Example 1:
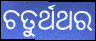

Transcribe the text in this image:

ଚତୁର୍ଥଥର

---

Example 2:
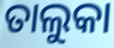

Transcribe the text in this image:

ତାଲୁକା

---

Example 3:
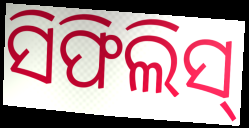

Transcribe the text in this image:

ସିଫିଲିସ୍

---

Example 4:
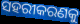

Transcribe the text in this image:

ସହରୀକରଣକୁ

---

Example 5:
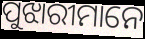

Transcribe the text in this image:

ପୁଝାରୀମାନେ